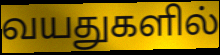
வயதுகளில்